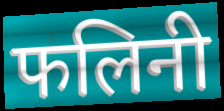
फलिनी